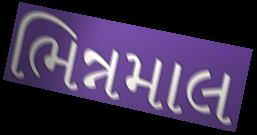
ભિન્નમાલ